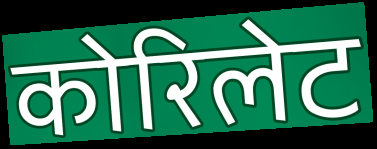
कोरिलेट